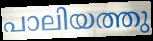
പാലിയത്തു